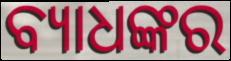
ବ୍ୟାଧଙ୍କର